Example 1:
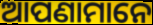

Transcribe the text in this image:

ଆପଣାମାନେ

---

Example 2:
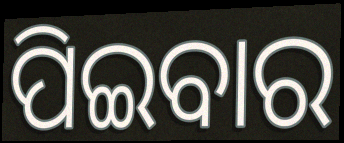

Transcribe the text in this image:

ପିଇବାର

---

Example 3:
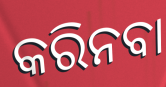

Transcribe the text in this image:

କରିନବା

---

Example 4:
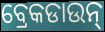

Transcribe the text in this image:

ବ୍ରେକଡାଉନ୍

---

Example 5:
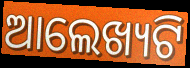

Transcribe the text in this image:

ଆଲେଖ୍ୟଟି